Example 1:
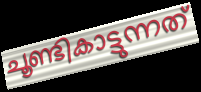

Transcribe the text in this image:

ചൂണ്ടികാട്ടുന്നത്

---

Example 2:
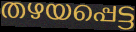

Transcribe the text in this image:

തഴയപ്പെട്ട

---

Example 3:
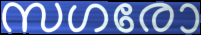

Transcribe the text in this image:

സഗരോ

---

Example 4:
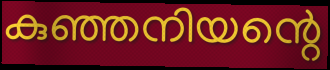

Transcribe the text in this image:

കുഞ്ഞനിയന്റെ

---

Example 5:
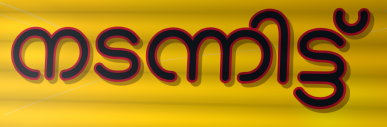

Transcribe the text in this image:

നടന്നിട്ട്